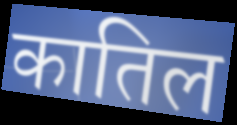
कातिल